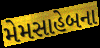
મેમસાહેબના